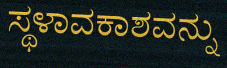
ಸ್ಥಳಾವಕಾಶವನ್ನು